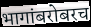
भागांबरोबरच